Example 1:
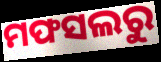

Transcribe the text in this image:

ମଫସଲରୁ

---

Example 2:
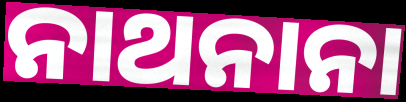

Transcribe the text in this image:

ନାଥନାନା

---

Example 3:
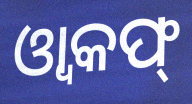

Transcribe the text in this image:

ଓ୍ଵାକଫ୍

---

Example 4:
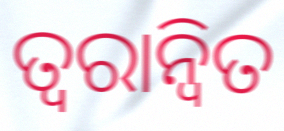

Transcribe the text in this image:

ତ୍ବରାନ୍ବିତ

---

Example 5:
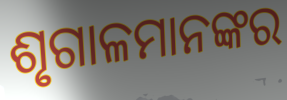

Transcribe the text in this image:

ଶୃଗାଳମାନଙ୍କର